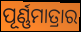
ପୂର୍ଣ୍ଣମାତ୍ରାର